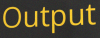
Output